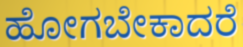
ಹೋಗಬೇಕಾದರೆ